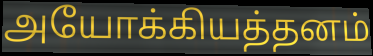
அயோக்கியத்தனம்